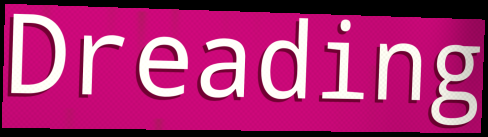
Dreading